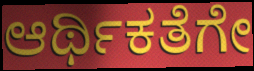
ಆರ್ಥಿಕತೆಗೇ